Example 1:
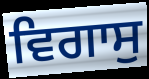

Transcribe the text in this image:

ਵਿਗਾਸੁ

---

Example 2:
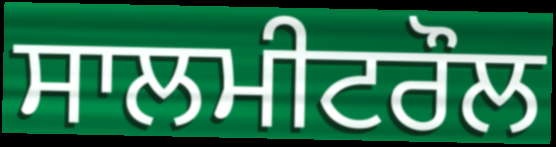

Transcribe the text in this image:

ਸਾਲਮੀਟਰੌਲ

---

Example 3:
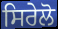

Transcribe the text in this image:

ਸਿਰੇਲੋ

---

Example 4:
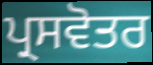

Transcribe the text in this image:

ਪ੍ਰਸਵੋਤਰ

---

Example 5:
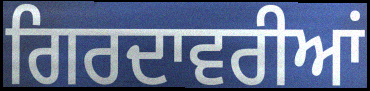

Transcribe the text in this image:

ਗਿਰਦਾਵਰੀਆਂ